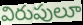
విరుపులూ